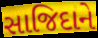
સાજિદાને